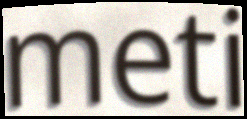
meti